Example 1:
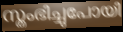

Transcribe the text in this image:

സ്തംഭിച്ചുപോയി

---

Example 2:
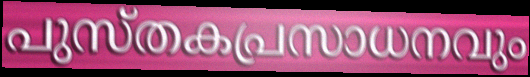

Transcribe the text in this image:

പുസ്തകപ്രസാധനവും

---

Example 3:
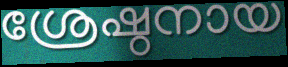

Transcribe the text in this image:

ശ്രേഷ്ഠനായ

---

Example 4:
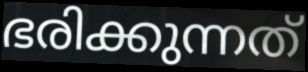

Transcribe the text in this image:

ഭരിക്കുന്നത്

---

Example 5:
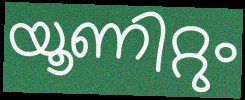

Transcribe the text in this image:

യൂണിറ്റും